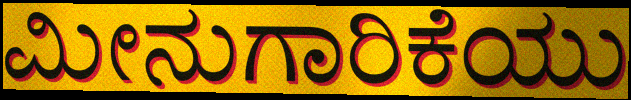
ಮೀನುಗಾರಿಕೆಯು